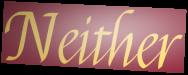
Neither